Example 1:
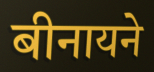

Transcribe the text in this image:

बीनायने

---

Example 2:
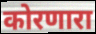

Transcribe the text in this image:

कोरणारा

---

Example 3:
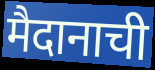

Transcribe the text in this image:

मैदानाची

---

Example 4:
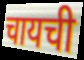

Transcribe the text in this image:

चायची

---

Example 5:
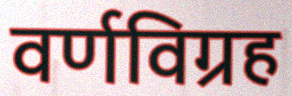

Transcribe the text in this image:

वर्णविग्रह